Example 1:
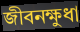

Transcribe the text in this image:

জীবনক্ষুধা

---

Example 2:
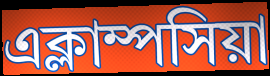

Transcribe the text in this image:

এক্লাম্পসিয়া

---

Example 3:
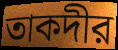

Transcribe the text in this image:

তাকদীর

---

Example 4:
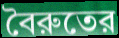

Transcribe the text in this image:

বৈরুতের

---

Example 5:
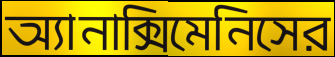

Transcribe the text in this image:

অ্যানাক্সিমেনিসের